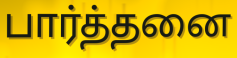
பார்த்தனை